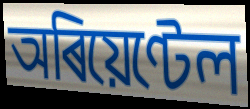
অৰিয়েণ্টেল